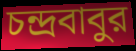
চন্দ্রবাবুর